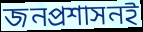
জনপ্রশাসনই